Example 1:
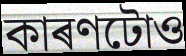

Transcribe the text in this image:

কাৰণটোও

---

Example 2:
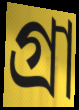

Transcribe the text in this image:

গ্ৰা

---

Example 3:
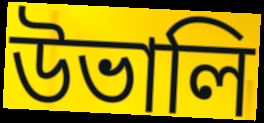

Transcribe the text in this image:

উভালি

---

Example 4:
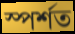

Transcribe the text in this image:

স্পৰ্শত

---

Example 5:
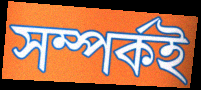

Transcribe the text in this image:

সম্পৰ্কই